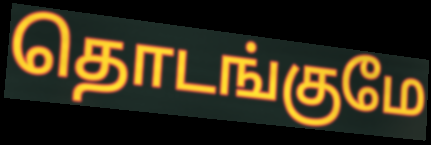
தொடங்குமே